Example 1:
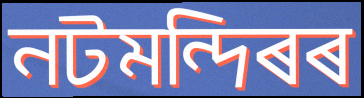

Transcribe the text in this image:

নটমন্দিৰৰ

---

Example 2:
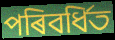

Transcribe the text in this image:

পৰিবৰ্ধিত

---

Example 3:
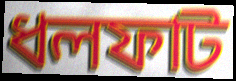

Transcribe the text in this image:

ধলফাট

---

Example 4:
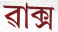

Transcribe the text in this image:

ৱাক্স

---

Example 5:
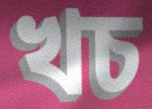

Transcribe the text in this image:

খচ